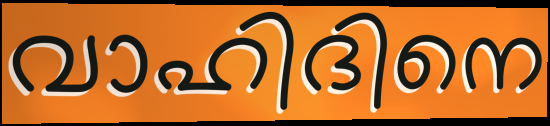
വാഹിദിനെ